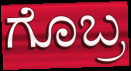
ಗೊಬ್ರ